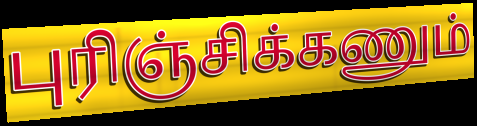
புரிஞ்சிக்கணும்